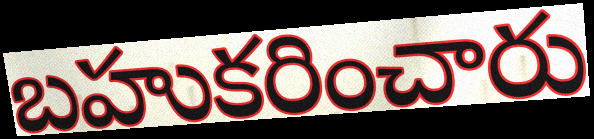
బహుకరించారు